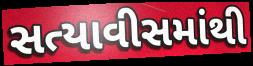
સત્યાવીસમાંથી